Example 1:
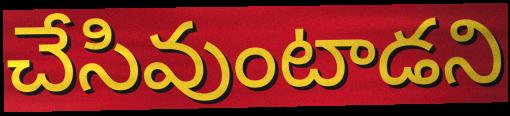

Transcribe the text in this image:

చేసివుంటాడని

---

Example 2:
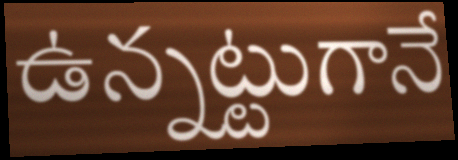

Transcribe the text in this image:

ఉన్నట్టుగానే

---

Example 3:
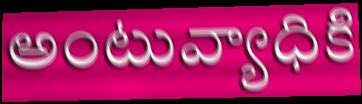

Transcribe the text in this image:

అంటువ్యాధికి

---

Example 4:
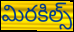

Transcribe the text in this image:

మిరకిల్స్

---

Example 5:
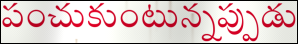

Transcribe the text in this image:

పంచుకుంటున్నప్పుడు